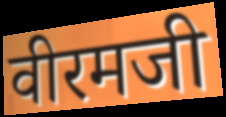
वीरमजी